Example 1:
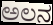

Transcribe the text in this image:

ಅಲನ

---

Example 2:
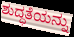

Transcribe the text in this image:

ಶುದ್ಧತೆಯನ್ನು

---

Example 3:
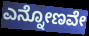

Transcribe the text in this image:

ಎನ್ನೋಣವೇ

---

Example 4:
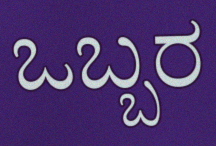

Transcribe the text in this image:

ಒಬ್ಬರ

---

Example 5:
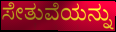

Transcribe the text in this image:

ಸೇತುವೆಯನ್ನು